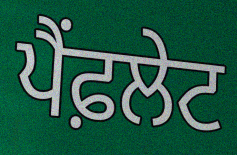
ਪੈਂਫ਼ਲੇਟ